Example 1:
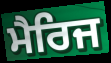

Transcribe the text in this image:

ਮੈਰਿਜ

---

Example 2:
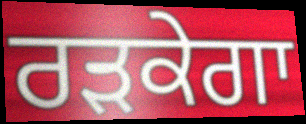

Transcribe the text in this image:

ਰੜਕੇਗਾ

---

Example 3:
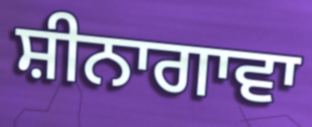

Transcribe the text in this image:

ਸ਼ੀਨਾਗਾਵਾ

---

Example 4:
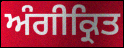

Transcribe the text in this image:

ਅੰਗੀਕ੍ਰਿਤ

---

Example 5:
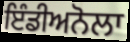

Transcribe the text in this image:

ਇੰਡੀਅਨੋਲਾ